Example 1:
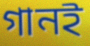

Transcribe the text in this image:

গানই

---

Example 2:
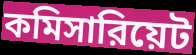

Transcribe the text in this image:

কমিসারিয়েট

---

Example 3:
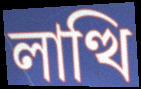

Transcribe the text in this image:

লাত্থি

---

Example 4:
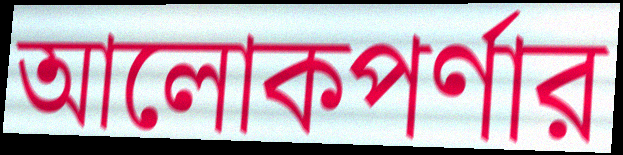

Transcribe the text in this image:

আলোকপর্ণার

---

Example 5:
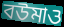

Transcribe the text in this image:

বউমাও